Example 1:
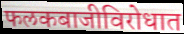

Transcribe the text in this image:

फलकबाजीविरोधात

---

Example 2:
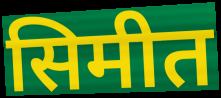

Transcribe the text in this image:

सिमीत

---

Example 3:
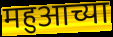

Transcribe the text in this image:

महुआच्या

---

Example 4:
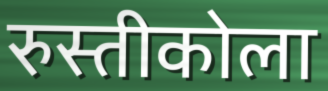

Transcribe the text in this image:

रुस्तीकोला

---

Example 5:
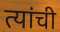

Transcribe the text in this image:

त्‍यांची